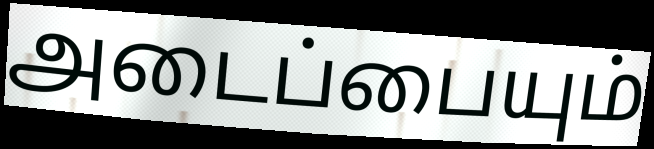
அடைப்பையும்